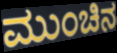
ಮುಂಚಿನ